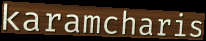
karamcharis